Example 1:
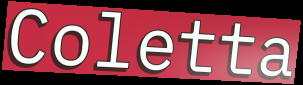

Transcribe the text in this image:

Coletta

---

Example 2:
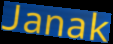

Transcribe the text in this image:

Janak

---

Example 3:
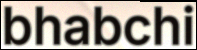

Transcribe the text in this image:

bhabchi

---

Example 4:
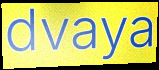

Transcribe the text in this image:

dvaya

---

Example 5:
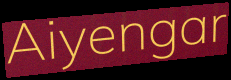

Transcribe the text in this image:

Aiyengar